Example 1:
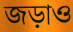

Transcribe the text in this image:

জড়াও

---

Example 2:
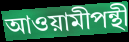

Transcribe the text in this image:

আওয়ামীপন্থী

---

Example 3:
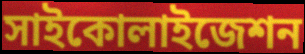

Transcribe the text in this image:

সাইকোলাইজেশন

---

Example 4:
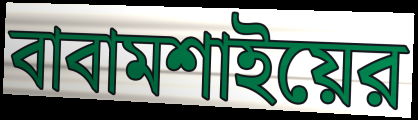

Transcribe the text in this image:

বাবামশাইয়ের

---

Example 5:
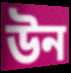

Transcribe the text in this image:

উন